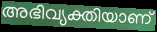
അഭിവ്യക്തിയാണ്